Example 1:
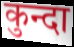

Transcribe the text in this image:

कुन्दा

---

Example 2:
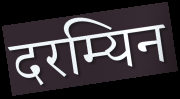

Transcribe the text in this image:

दरम्यिन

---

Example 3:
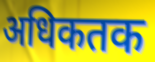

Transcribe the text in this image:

अधिकतक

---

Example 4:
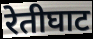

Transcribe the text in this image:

रेतीघाट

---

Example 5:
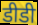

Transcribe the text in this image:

डीडी